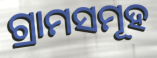
ଗ୍ରାମସମୂହ